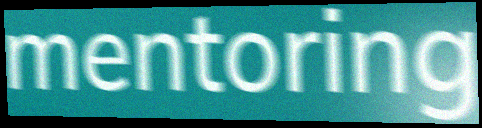
mentoring